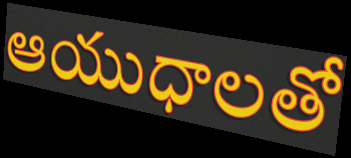
ఆయుధాలతో